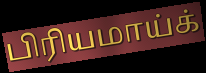
பிரியமாய்க்